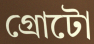
গ্রোটো